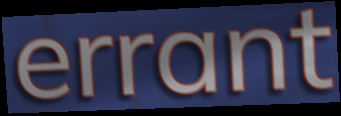
errant